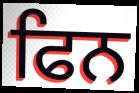
ਫਿਨ